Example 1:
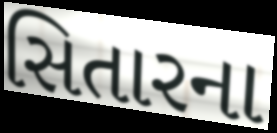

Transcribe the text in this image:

સિતારના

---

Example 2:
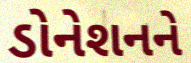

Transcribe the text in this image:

ડોનેશનને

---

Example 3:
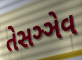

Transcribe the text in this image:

તેસઞ્ઞેવ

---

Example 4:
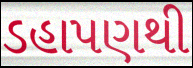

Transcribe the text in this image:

ડહાપણથી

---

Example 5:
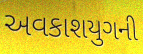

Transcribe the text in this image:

અવકાશયુગની